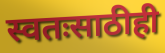
स्वतःसाठीही